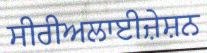
ਸੀਰੀਅਲਾਈਜ਼ੇਸ਼ਨ